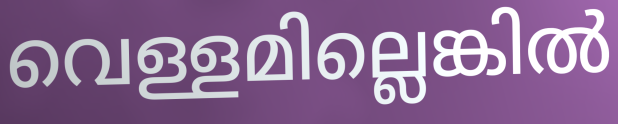
വെള്ളമില്ലെങ്കിൽ